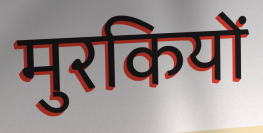
मुरकियों